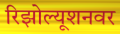
रिझोल्यूशनवर